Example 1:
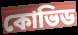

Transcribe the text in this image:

কোভিড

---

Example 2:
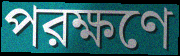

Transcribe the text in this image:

পরক্ষণে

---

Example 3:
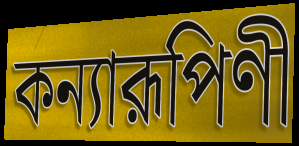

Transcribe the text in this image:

কন্যারূপিণী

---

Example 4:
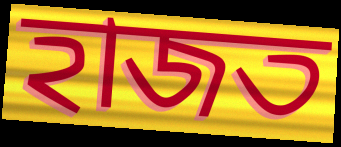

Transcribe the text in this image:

হাজত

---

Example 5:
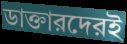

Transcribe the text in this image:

ডাক্তারদেরই